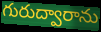
గురుద్వారాను